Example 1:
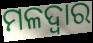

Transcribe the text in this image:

ମଳଦ୍ୱାର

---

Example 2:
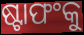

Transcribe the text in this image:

ଷ୍ଟାଫଂକୁ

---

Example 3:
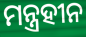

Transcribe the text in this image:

ମନ୍ତ୍ରହୀନ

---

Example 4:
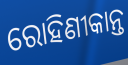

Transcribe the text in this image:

ରୋହିଣୀକାନ୍ତ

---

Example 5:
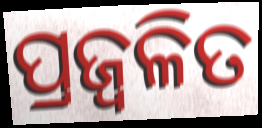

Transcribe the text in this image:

ପ୍ରଜ୍ୱଳିତ